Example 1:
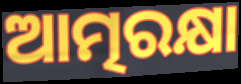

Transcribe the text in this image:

ଆତ୍ମରକ୍ଷା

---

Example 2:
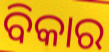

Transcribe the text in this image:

ବିକାର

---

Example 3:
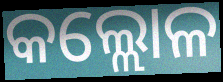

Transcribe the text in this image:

କଲ୍ଲୋଳ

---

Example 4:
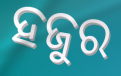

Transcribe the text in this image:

ହଜୁର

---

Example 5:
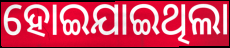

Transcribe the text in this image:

ହୋଇଯାଇଥିଲା